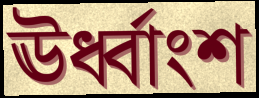
ঊর্ধ্বাংশ